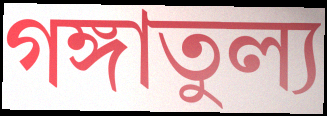
গঙ্গাতুল্য